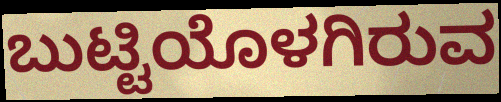
ಬುಟ್ಟಿಯೊಳಗಿರುವ